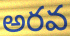
అరవ